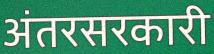
अंतरसरकारी